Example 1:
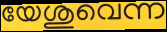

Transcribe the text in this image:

യേശുവെന്ന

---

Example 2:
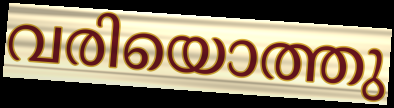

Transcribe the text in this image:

വരിയൊത്തു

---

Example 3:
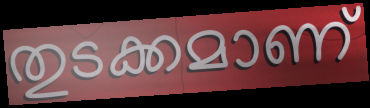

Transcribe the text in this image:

തുടക്കമാണ്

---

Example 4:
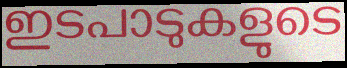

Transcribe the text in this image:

ഇടപാടുകളുടെ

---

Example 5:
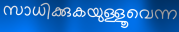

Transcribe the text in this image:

സാധിക്കുകയുള്ളൂവെന്ന